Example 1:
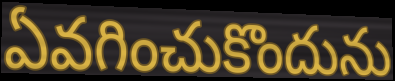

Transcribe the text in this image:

ఏవగించుకొందును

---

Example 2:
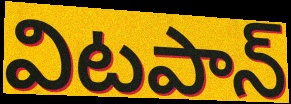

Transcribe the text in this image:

విటపాన్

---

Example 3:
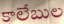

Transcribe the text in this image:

కాలేబుల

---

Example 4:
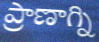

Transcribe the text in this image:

ప్రాణాగ్ని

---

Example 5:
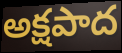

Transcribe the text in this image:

అక్షపాద